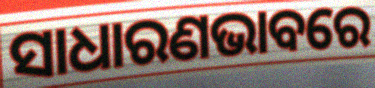
ସାଧାରଣଭାବରେ